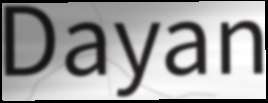
Dayan